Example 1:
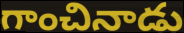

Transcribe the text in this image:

గాంచినాడు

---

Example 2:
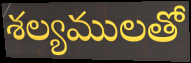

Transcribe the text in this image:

శల్యములతో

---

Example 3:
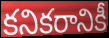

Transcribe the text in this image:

కనికరానికీ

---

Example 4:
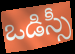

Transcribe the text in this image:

ఒడిస్సీ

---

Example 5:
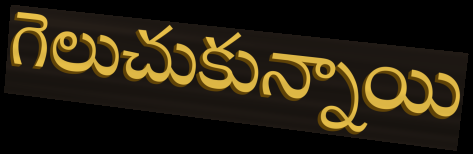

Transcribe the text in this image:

గెలుచుకున్నాయి